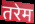
तरेम